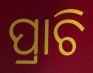
ପ୍ରାଚି